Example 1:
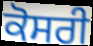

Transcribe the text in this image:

ਕੋਸਰੀ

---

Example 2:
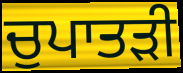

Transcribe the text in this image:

ਚੁਪਾਤੜੀ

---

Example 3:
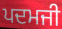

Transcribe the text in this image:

ਪਦਮਜੀ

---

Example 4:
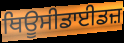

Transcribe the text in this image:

ਥਿਊਸੀਡਾਈਡਜ਼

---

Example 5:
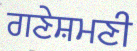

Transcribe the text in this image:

ਗਣੇਸ਼ਮਣੀ